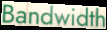
Bandwidth